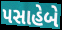
પસાહેબે